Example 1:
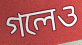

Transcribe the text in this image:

গলেও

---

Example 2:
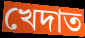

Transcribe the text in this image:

খেদাত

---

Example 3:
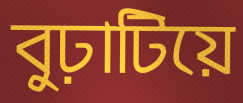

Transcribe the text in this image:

বুঢ়াটিয়ে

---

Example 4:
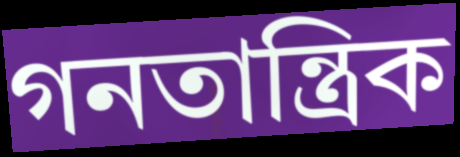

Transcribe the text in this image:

গনতান্ত্ৰিক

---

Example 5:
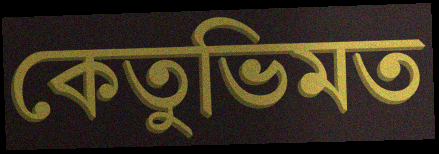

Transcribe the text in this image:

কেতুভিমত